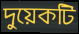
দুয়েকটি